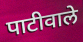
पाटीवाले